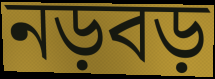
নড়বড়